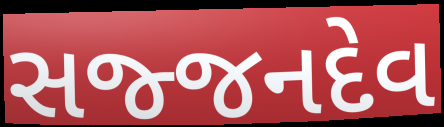
સજ્જનદેવ